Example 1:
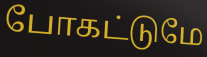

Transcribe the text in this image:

போகட்டுமே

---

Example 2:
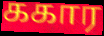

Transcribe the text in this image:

ககார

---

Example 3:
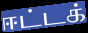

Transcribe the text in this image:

ஈட்டக்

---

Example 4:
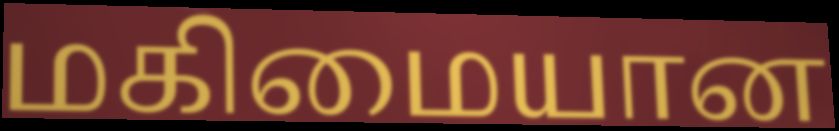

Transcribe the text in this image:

மகிமையான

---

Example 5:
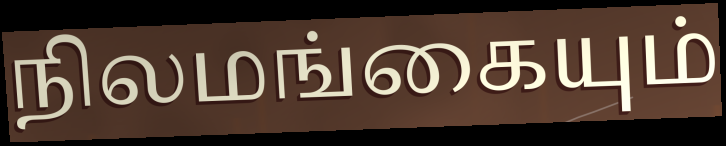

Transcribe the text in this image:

நிலமங்கையும்